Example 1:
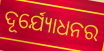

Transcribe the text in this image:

ଦୂର୍ଯ୍ୟୋଧନର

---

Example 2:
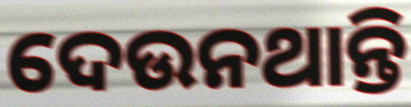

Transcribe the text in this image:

ଦେଉନଥାନ୍ତି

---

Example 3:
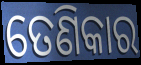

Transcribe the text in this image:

ତେଣିକାର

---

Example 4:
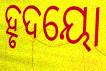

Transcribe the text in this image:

ହୃଦୟୋ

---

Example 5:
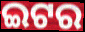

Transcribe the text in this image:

ଇଟର